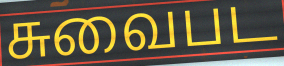
சுவைபட